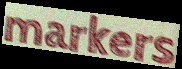
markers